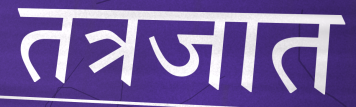
तत्रजात